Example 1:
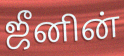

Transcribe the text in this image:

ஜீனின்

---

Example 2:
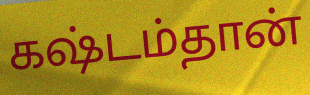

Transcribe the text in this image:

கஷ்டம்தான்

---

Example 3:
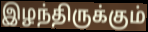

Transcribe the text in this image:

இழந்திருக்கும்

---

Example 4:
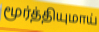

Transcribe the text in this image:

மூர்த்தியுமாய்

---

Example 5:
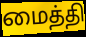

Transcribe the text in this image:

மைத்தி